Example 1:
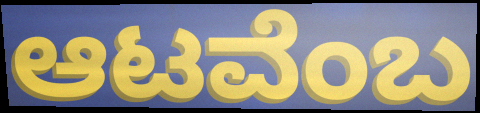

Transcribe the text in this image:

ಆಟವೆಂಬ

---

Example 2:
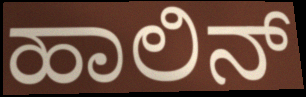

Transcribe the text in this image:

ಹಾಲಿನ್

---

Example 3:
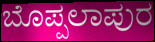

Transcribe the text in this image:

ಬೊಪ್ಪಲಾಪುರ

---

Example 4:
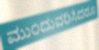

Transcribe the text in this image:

ಮುಂದುವರಿಸಿದರೂ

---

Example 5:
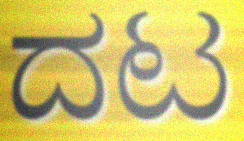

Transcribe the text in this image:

ದಟ